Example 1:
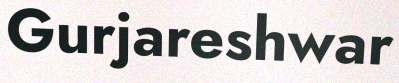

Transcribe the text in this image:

Gurjareshwar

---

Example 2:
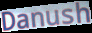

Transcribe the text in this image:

Danush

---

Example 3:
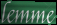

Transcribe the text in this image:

lemme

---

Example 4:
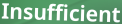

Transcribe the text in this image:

Insufficient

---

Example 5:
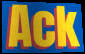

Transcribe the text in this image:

Ack